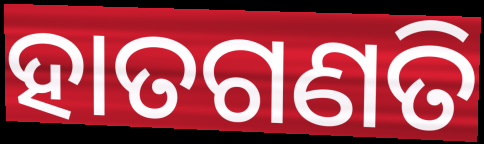
ହାତଗଣତି